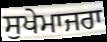
ਸੁਖੇਮਾਜਰਾ